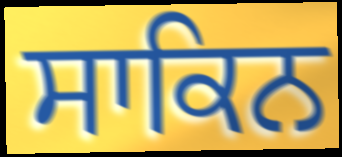
ਸਾਕਿਨ